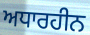
ਅਧਾਰਹੀਨ